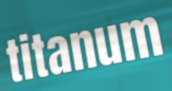
titanum